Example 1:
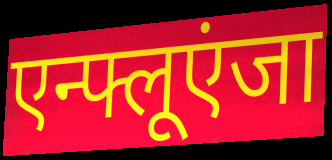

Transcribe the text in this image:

एन्फ्लूएंजा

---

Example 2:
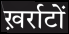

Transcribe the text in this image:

ख़र्राटों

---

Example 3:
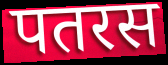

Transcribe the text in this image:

पतरस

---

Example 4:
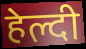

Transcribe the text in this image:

हेल्‍दी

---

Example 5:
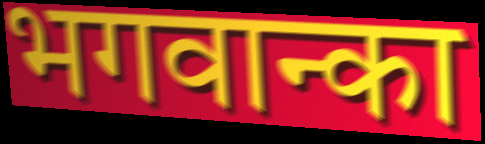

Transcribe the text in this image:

भगवान्का